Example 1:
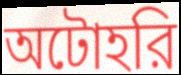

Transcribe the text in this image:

অটোহরি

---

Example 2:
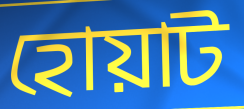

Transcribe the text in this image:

হোয়াট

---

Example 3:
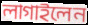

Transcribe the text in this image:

লাগাইলেন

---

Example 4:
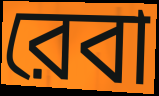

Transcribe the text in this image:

রেবা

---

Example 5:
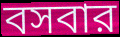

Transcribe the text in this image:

বসবার